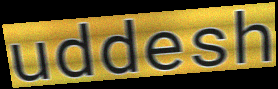
uddesh